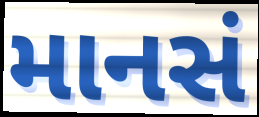
માનસં